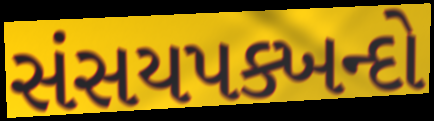
સંસયપક્ખન્દો